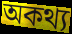
অকথ্য